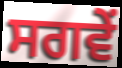
ਸਗਵੇਂ